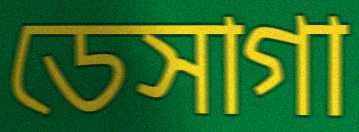
ডেসাগা